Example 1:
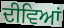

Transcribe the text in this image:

ਦੀਵਿਆਂ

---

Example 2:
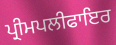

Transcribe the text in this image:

ਪ੍ਰੀਮਪਲੀਫਾਇਰ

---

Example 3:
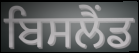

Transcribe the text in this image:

ਬਿਸਲੈਂਡ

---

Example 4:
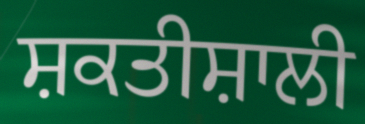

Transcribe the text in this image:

ਸ਼ਕਤੀਸ਼ਾਲੀ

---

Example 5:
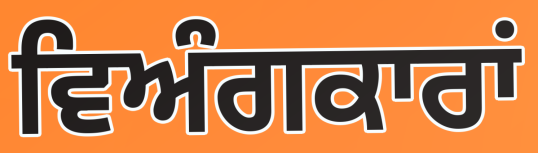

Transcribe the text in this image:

ਵਿਅੰਗਕਾਰਾਂ